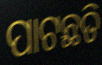
ପାଟଛତି